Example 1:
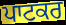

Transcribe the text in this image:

ਪਾਟਕਰ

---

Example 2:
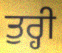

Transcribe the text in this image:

ਤੁਰ੍ਹੀ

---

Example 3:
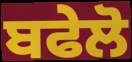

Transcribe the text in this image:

ਬਫੇਲੋ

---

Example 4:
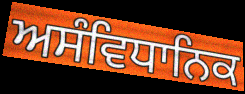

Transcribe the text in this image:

ਅਸੰਵਿਧਾਨਿਕ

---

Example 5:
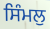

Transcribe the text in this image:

ਸਿੰਮਲੁ